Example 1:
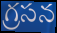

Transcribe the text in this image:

గ్రసన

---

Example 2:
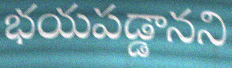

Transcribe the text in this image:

భయపడ్డానని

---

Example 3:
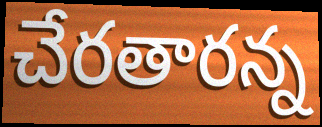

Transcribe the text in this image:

చేరతారన్న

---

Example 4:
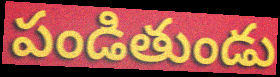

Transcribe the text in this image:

పండితుండు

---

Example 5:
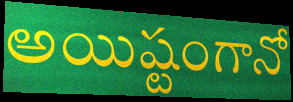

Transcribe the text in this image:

అయిష్టంగానో